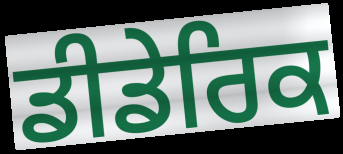
ਡੀਡੇਰਿਕ